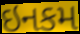
ઇનકમ